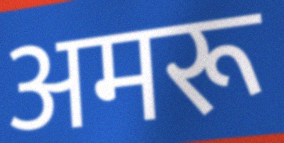
अमरू